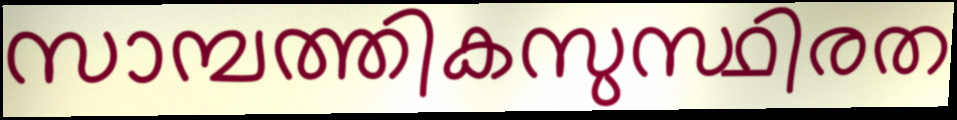
സാമ്പത്തികസുസ്ഥിരത